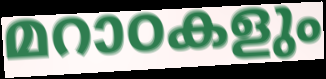
മറാഠകളും